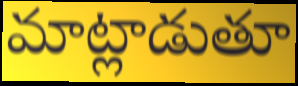
మాట్లాడుతూ